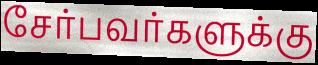
சேர்பவர்களுக்கு